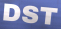
DST